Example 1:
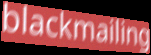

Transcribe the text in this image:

blackmailing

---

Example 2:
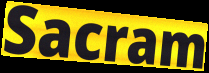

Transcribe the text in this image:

Sacram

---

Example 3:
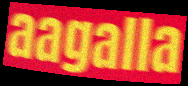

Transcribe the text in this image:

aagalla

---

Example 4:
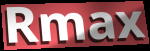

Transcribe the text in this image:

Rmax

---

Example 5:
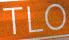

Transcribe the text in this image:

TLO